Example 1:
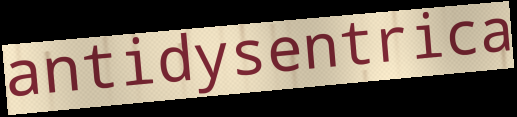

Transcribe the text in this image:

antidysentrica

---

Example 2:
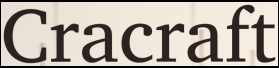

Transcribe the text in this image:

Cracraft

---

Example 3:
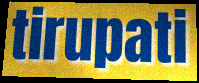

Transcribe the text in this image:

tirupati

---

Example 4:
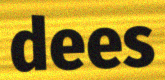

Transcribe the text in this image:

dees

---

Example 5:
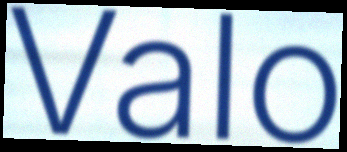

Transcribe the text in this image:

Valo